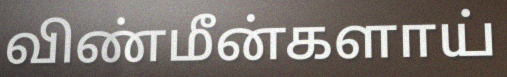
விண்மீன்களாய்